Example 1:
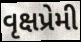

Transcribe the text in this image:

વૃક્ષપ્રેમી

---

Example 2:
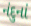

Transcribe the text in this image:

નંદુનાં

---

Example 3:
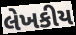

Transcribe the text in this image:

લેખકીય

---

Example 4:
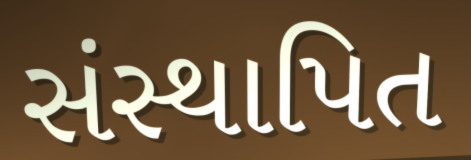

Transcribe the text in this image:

સંસ્થાપિત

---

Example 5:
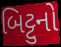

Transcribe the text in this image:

બિટ્ટુનો